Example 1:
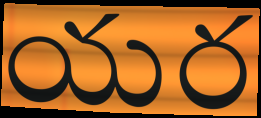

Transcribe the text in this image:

యర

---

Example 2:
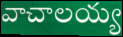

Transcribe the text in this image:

వాచాలయ్య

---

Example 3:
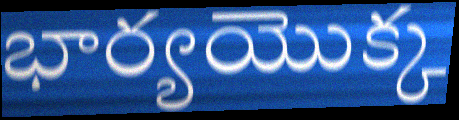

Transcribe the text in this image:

భార్యయొక్క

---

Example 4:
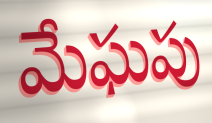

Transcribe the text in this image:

మేఘపు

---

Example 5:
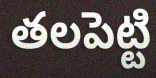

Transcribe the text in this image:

తలపెట్టి